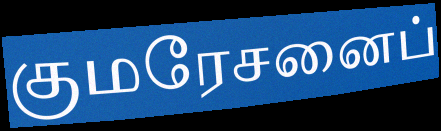
குமரேசனைப்